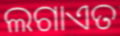
ଲଗାଏତ